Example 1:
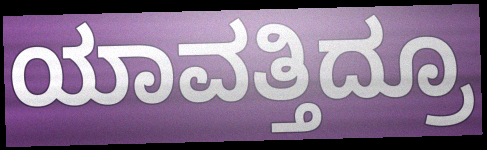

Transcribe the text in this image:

ಯಾವತ್ತಿದ್ರೂ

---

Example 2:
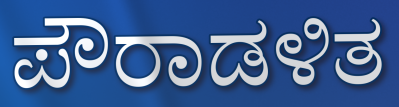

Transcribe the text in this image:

ಪೌರಾಡಳಿತ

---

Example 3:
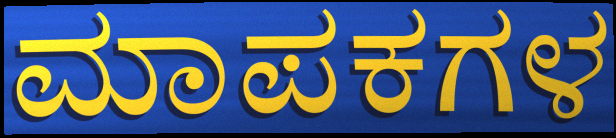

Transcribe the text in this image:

ಮಾಪಕಗಳ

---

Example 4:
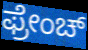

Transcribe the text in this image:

ಫ್ರೇಂಚ್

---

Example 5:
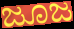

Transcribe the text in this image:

ಜೂಜ